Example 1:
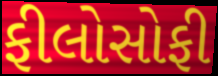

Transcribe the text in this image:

ફીલોસોફી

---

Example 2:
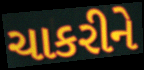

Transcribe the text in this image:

ચાકરીને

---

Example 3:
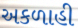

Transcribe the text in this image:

અકળાહી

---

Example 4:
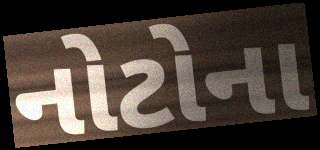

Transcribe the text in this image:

નોટોના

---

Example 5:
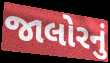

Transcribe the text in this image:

જાલોરનું